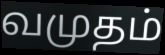
வமுதம்